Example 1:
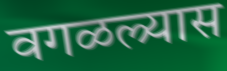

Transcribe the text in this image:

वगळल्यास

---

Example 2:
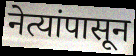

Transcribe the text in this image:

नेत्यांपासून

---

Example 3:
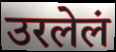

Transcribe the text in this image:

उरलेलं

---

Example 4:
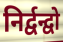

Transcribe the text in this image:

निर्द्वन्द्वो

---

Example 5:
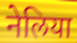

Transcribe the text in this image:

नेलिया